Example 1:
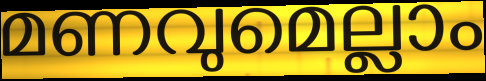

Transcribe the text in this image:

മണവുമെല്ലാം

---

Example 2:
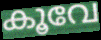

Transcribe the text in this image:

കൂവേ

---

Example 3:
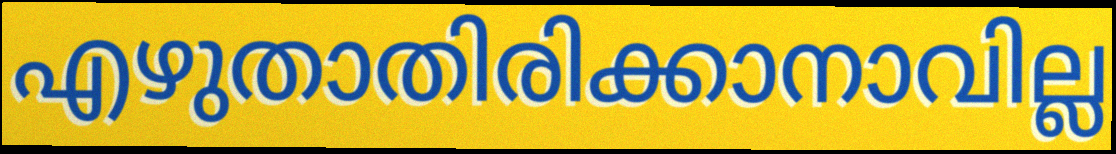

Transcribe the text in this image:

എഴുതാതിരിക്കാനാവില്ല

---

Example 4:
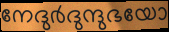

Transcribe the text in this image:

നേദുർദുന്ദുഭയോ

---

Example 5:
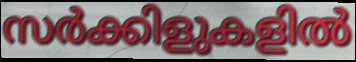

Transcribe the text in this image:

സർക്കിളുകളിൽ